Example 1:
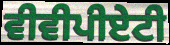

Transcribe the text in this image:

ਵੀਵੀਪੀਏਟੀ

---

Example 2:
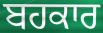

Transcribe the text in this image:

ਬਹਕਾਰ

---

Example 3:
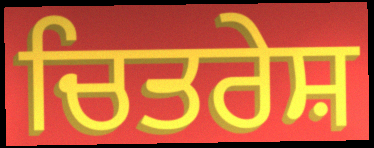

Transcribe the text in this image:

ਚਿਤਰੇਸ਼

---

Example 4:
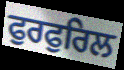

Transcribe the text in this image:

ਫੁਰਫੁਰਿਲ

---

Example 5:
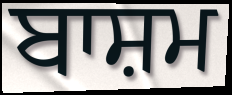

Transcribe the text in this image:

ਬਾਸ਼ਮ